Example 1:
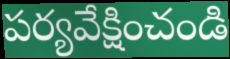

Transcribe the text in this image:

పర్యవేక్షించండి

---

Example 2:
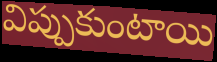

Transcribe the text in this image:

విప్పుకుంటాయి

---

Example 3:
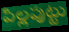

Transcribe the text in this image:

పిల్లపుట్టు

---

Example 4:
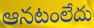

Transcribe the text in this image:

ఆనటంలేదు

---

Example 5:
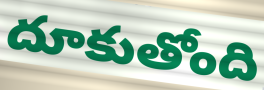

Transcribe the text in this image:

దూకుతోంది